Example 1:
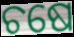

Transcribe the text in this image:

ଚଷେ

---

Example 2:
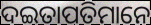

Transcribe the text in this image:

ଦଇତାପତିମାନେ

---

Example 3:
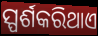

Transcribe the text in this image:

ସ୍ପର୍ଶକରିଥାଏ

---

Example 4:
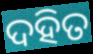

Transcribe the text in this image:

ଦହିତ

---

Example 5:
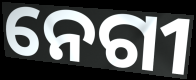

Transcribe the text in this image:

ନେଗୀ